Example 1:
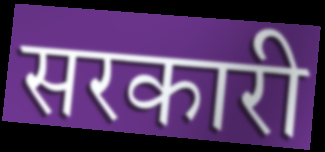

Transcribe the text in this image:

सरकारी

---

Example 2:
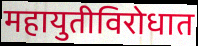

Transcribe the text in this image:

महायुतीविरोधात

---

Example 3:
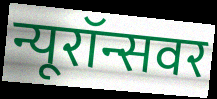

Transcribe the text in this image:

न्यूरॉन्सवर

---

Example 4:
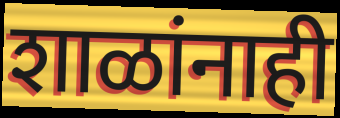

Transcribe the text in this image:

शाळांनाही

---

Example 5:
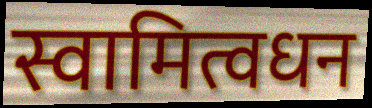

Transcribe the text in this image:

स्वामित्वधन